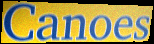
Canoes